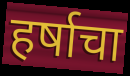
हर्षाचा